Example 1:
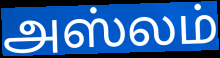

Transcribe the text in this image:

அஸ்லம்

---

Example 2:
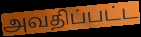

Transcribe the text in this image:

அவதிப்பட்ட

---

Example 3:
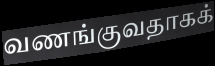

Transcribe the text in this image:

வணங்குவதாகக்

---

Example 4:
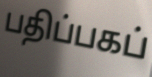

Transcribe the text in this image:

பதிப்பகப்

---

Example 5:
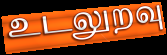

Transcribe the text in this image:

உடலுறவு